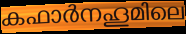
കഫാർനഹൂമിലെ